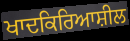
ਖਾਦਕਿਰਿਆਸ਼ੀਲ